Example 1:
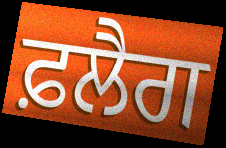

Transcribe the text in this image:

ਫ਼ਲੈਗ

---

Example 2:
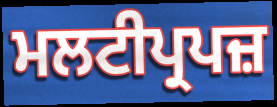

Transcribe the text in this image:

ਮਲਟੀਪ੍ਰਪਜ਼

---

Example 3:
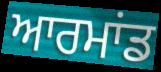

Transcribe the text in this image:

ਆਰਮਾਂਡ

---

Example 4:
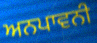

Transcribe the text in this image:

ਅਨਪਾਵਨੀ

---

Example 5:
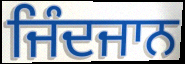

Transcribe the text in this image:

ਜਿੰਦਜਾਨ